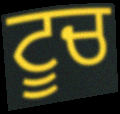
ਟੂਚ